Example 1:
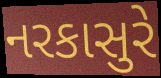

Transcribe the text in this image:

નરકાસુરે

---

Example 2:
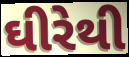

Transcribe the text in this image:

ઘીરેથી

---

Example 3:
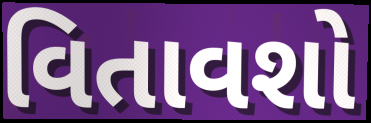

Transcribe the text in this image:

વિતાવશો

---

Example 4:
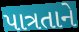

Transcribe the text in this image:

પાત્રતાને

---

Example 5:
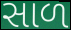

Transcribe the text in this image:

સાળ